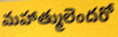
మహాత్ములెందరో